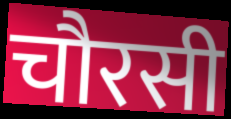
चौरसी